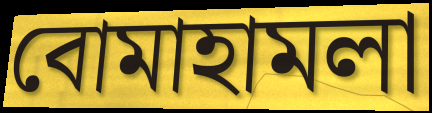
বোমাহামলা